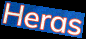
Heras